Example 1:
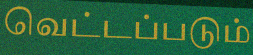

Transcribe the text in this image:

வெட்டப்படும்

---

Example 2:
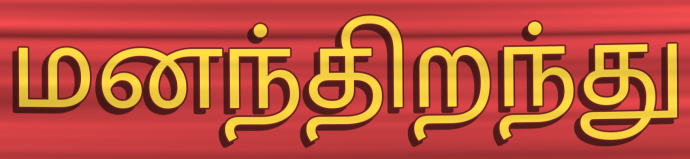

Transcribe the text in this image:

மனந்திறந்து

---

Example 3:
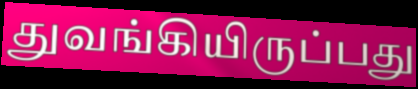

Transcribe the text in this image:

துவங்கியிருப்பது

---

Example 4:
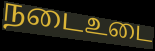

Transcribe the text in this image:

நடைஉடை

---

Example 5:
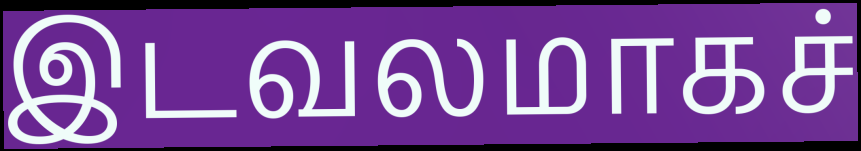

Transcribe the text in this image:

இடவலமாகச்